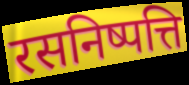
रसनिष्पत्ति